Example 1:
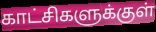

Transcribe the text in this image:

காட்சிகளுக்குள்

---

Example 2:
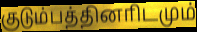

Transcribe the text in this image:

குடும்பத்தினரிடமும்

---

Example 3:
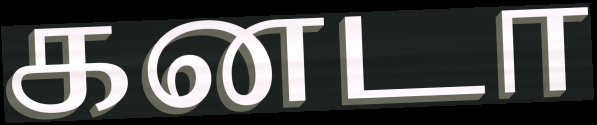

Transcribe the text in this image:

கனடா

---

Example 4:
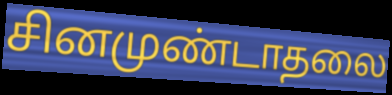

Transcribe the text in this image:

சினமுண்டாதலை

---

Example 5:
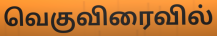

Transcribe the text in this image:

வெகுவிரைவில்